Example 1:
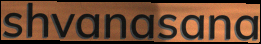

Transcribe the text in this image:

shvanasana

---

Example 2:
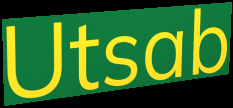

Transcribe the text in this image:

Utsab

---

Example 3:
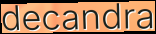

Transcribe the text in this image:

decandra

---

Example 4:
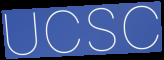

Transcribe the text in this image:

UCSC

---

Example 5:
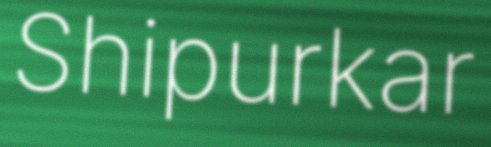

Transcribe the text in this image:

Shipurkar